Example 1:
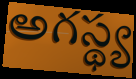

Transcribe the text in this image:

అగస్థ్య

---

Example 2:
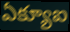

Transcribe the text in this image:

ఏక్యూఐ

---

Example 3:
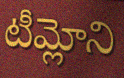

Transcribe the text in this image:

టీమ్లోని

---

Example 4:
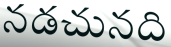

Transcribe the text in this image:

నడచునది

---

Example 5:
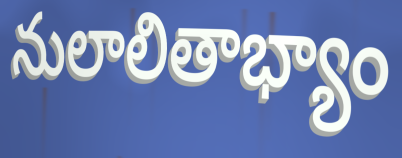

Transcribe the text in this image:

నులాలితాభ్యాం